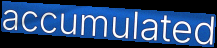
accumulated